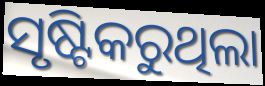
ସୃଷ୍ଟିକରୁଥିଲା